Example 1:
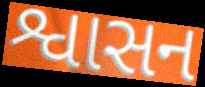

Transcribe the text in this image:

શ્વાસન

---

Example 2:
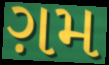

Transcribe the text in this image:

ગ઼મ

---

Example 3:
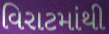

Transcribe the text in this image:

વિરાટમાંથી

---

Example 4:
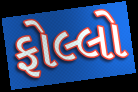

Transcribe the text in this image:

ફોલ્લો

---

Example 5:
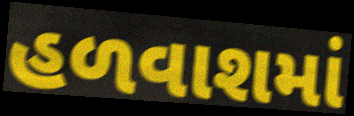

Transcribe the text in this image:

હળવાશમાં